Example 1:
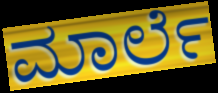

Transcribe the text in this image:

ಮಾರ್ಲೆ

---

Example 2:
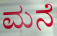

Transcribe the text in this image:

ಮನೆ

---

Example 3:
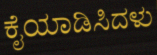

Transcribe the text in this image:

ಕೈಯಾಡಿಸಿದಳು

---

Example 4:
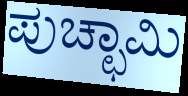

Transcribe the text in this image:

ಪುಚ್ಛಾಮಿ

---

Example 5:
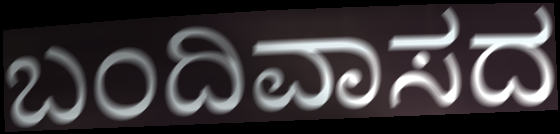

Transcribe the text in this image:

ಬಂದಿವಾಸದ